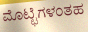
ಮೊಟ್ಟೆಗಳಂತಹ